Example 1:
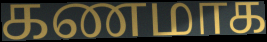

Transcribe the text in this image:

கணமாக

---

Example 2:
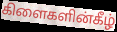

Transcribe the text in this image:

கிளைகளின்கீழ்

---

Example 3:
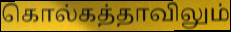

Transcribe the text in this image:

கொல்கத்தாவிலும்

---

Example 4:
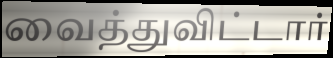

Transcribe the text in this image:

வைத்துவிட்டார்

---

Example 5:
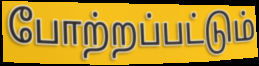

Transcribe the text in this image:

போற்றப்பட்டும்